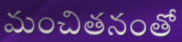
మంచితనంతో